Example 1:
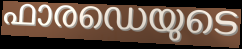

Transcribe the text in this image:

ഫാരഡെയുടെ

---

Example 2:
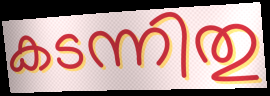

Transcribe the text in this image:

കടന്നിതു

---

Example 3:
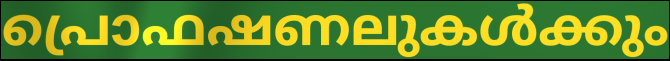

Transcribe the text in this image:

പ്രൊഫഷണലുകൾക്കും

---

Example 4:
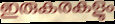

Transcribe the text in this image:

ഇരുകരകളും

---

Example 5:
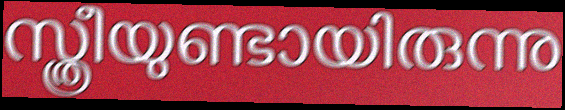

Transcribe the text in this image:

സ്ത്രീയുണ്ടായിരുന്നു